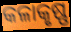
କଳାକୃଷ୍ଣ